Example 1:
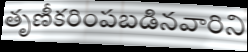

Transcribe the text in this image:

తృణీకరింపబడినవారిని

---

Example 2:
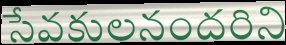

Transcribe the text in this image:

సేవకులనందరిని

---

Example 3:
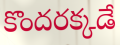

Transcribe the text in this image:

కొందరక్కడే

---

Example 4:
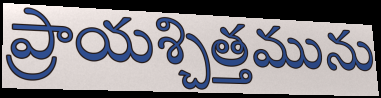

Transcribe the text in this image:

ప్రాయశ్చిత్తమును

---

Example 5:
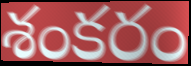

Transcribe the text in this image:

శంకరం